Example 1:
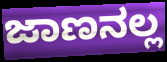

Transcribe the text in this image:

ಜಾಣನಲ್ಲ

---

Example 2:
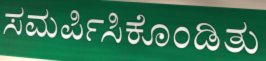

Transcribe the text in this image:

ಸಮರ್ಪಿಸಿಕೊಂಡಿತು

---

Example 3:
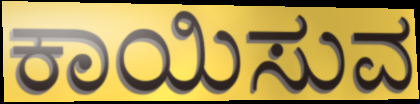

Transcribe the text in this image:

ಕಾಯಿಸುವ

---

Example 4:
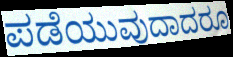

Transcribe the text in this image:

ಪಡೆಯುವುದಾದರೂ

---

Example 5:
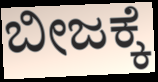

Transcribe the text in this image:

ಬೀಜಕ್ಕೆ